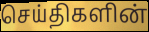
செய்திகளின்